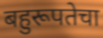
बहुरूपतेचा